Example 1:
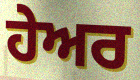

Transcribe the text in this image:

ਹੇਅਰ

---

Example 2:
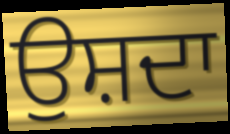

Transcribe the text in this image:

ਉਸ਼ਦਾ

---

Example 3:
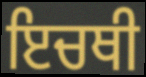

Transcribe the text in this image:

ਇਚਥੀ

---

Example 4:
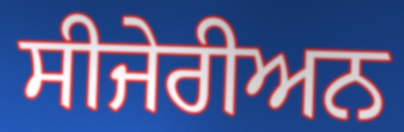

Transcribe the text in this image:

ਸੀਜੇਰੀਅਨ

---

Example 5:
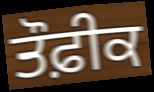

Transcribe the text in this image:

ਤੌਫ਼ੀਕ